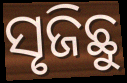
ସୃଜିଛୁ